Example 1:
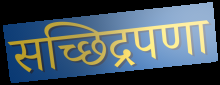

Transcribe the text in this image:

सच्छिद्रपणा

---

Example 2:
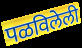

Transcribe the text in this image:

पळविलेली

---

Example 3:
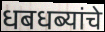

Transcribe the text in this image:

धबधब्यांचे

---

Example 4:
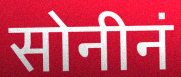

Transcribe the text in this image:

सोनीनं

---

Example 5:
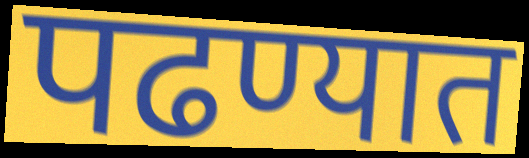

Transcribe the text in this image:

पढण्यात